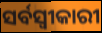
ସର୍ବସ୍ଵୀକାରୀ